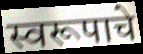
स्वरूपाचे